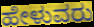
ಹೇಳುವರು